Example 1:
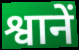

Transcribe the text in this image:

श्वानें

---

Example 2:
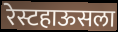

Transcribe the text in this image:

रेस्टहाऊसला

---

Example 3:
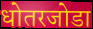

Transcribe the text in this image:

धोतरजोडा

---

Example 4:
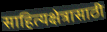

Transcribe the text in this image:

साहित्यक्षेत्रासाठी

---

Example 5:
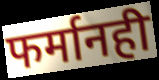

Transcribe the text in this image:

फर्मानही